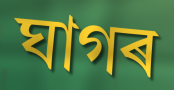
ঘাগৰ